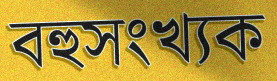
বহুসংখ্যক